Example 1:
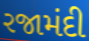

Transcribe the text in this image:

રજામંદી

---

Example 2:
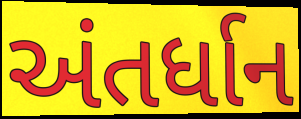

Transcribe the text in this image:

અંતર્ધાન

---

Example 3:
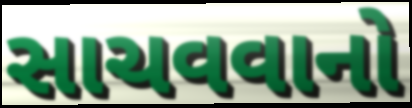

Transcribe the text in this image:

સાચવવાનો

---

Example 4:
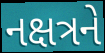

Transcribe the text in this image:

નક્ષત્રને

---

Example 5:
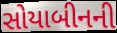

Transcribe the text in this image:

સોયાબીનની